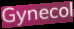
Gynecol